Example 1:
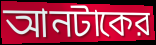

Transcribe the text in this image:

আনটাকের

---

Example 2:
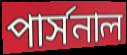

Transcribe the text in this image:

পার্সনাল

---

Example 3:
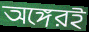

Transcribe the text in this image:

অঙ্গেরই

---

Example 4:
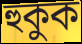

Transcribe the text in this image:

হুকুক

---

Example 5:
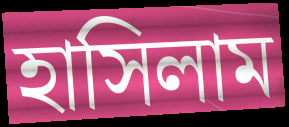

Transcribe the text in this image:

হাসিলাম